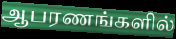
ஆபரணங்களில்